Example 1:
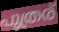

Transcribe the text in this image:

പുത്രര്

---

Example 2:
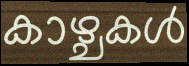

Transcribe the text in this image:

കാഴ്ചകൾ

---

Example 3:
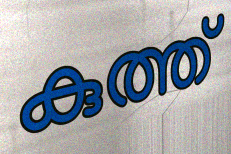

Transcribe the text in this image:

കുത്ത്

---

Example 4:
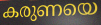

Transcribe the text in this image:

കരുണയെ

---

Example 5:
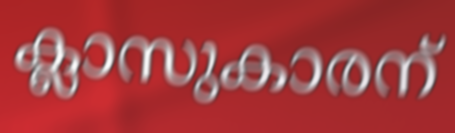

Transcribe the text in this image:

ക്ലാസുകാരന്